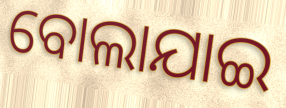
ବୋଲାଯାଇ